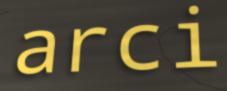
arci